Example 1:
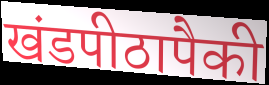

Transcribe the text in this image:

खंडपीठापैकी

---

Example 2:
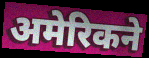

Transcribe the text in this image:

अमेरिकने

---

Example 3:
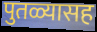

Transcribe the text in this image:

पुतळ्यासह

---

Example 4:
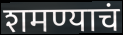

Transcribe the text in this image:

शमण्याचं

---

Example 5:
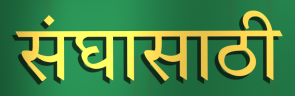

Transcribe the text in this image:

संघासाठी